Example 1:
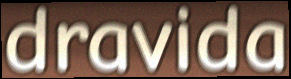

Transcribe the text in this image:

dravida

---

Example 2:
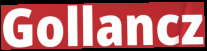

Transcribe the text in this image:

Gollancz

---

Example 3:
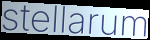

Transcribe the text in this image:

stellarum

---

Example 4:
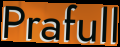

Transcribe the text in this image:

Prafull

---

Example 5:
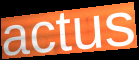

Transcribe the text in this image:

actus